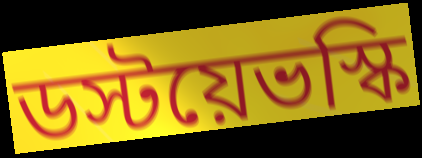
ডস্টয়েভস্কি